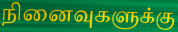
நினைவுகளுக்கு